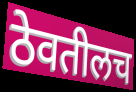
ठेवतीलच